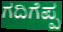
ಗದಿಗೆಪ್ಪ